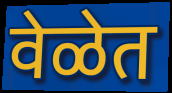
वेळेत